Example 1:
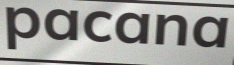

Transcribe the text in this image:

pacana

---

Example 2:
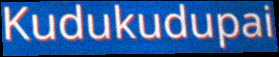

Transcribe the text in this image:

Kudukudupai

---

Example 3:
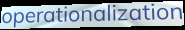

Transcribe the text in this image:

operationalization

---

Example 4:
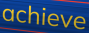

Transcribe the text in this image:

achieve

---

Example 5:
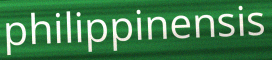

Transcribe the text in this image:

philippinensis